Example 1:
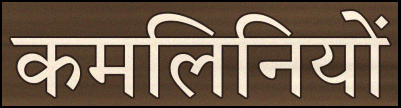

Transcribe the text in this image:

कमलिनियों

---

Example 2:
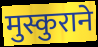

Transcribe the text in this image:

मुस्कुराने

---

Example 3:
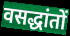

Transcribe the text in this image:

वसद्धांतों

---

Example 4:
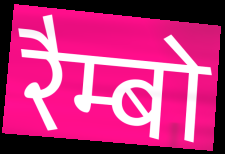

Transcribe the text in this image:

रैम्बो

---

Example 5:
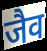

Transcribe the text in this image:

जैव